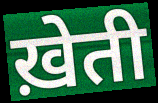
ख़ेती